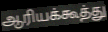
ஆரியக்கூத்து